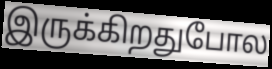
இருக்கிறதுபோல